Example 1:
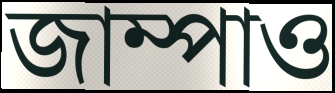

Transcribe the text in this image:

জাম্পাও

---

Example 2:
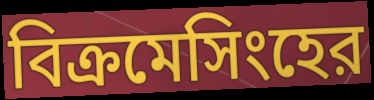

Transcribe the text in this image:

বিক্রমেসিংহের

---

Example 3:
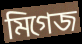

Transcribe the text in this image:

মিগেজ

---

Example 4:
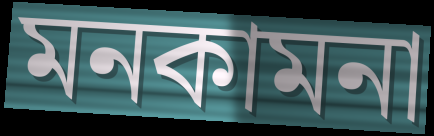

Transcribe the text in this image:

মনকামনা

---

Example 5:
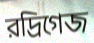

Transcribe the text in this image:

রদ্রিগেজ